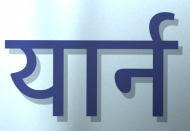
यार्न